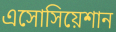
এসোসিয়েশান